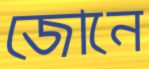
জোনে